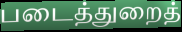
படைத்துறைத்